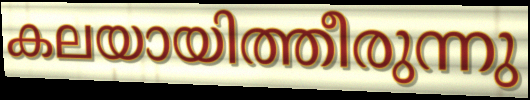
കലയായിത്തീരുന്നു